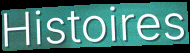
Histoires